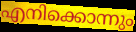
എനിക്കൊന്നും